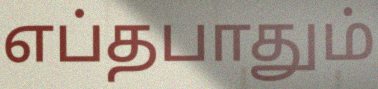
எப்தபாதும்